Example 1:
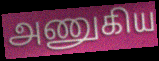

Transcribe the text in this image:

அணுகிய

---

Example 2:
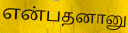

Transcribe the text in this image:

என்பதனானு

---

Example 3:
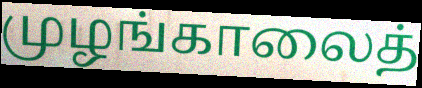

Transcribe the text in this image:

முழங்காலைத்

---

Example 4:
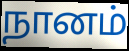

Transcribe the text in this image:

நானம்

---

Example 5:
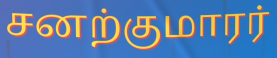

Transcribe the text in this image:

சனற்குமாரர்